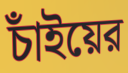
চাঁইয়ের